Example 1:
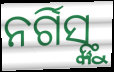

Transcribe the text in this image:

ନର୍ଗିସ୍ଙ୍କୁ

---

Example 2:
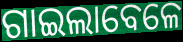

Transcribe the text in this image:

ଗାଇଲାବେଳେ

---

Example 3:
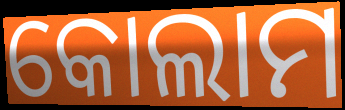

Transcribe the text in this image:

କୋଲାମ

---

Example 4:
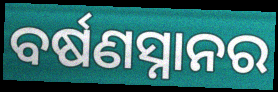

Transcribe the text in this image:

ବର୍ଷଣସ୍ନାନର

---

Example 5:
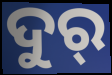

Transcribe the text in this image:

ଦୁର୍